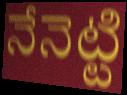
నేనెట్టి